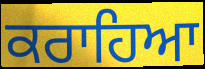
ਕਰਾਹਿਆ